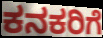
ಕನಕರಿಗೆ